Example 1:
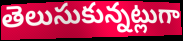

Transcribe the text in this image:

తెలుసుకున్నట్లుగా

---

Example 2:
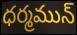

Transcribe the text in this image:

ధర్మమున్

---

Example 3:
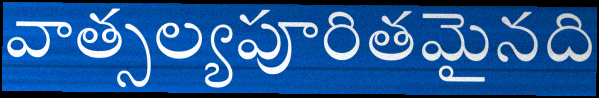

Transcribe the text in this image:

వాత్సల్యపూరితమైనది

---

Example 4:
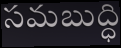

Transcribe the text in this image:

సమబుద్ధి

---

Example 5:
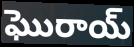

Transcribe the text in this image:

ఘొరాయ్